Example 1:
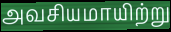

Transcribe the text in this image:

அவசியமாயிற்று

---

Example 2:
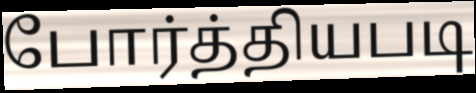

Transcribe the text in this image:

போர்த்தியபடி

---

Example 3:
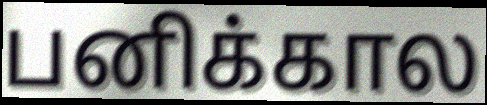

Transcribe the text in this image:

பனிக்கால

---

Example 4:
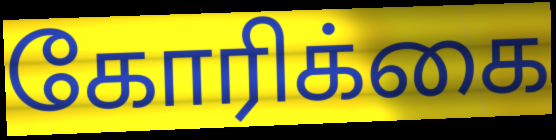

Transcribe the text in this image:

கோரிக்கை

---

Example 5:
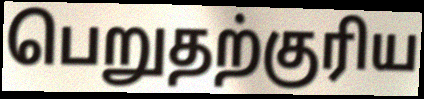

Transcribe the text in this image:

பெறுதற்குரிய